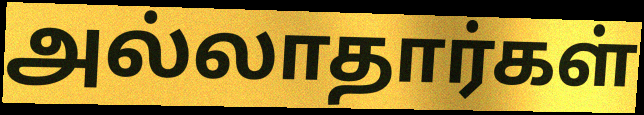
அல்லாதார்கள்